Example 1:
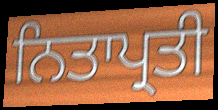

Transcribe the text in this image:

ਨਿਤਾਪ੍ਰਤੀ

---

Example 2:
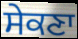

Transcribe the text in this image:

ਸੇਕਣਾ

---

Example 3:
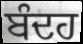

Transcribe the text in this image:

ਬੰਦਹ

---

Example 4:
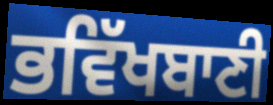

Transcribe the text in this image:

ਭਵਿੱਖਬਾਣੀ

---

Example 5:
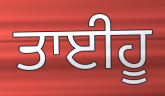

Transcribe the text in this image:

ਤਾਈਹੂ